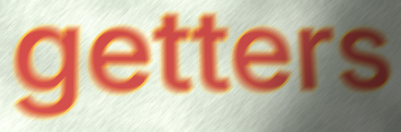
getters